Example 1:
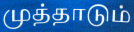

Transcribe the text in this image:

முத்தாடும்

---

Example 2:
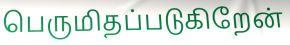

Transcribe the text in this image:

பெருமிதப்படுகிறேன்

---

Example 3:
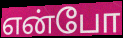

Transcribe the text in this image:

என்போ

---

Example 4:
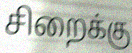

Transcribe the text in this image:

சிறைக்கு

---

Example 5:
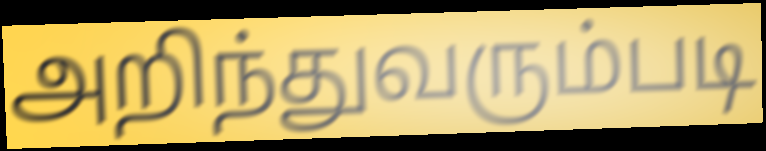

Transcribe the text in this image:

அறிந்துவரும்படி